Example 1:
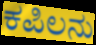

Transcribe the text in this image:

ಕಪಿಲನು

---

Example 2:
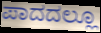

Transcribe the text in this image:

ಪಾದದಲ್ಲೂ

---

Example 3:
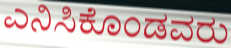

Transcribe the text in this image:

ಎನಿಸಿಕೊಂಡವರು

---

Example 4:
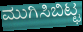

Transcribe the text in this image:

ಮುಗಿಸಿಬಿಟ್ಟ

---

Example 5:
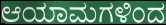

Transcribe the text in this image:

ಆಯಾಮಗಳಿಂದ